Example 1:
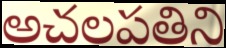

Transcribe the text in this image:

అచలపతిని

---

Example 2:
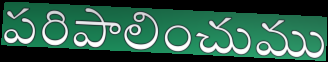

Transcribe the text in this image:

పరిపాలించుము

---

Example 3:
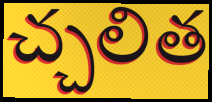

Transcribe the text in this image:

చ్చలిత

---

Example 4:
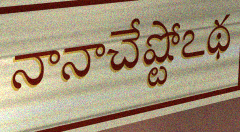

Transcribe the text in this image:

నానాచేష్టోఽథ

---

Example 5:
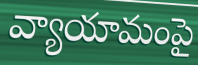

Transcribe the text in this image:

వ్యాయామంపై